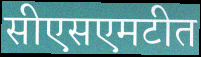
सीएसएमटीत